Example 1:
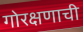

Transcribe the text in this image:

गोरक्षणाची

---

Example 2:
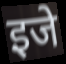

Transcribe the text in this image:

इजे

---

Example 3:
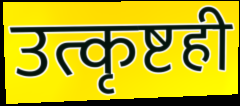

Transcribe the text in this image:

उत्कृष्टही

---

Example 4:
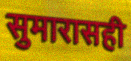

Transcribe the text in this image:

सुमारासही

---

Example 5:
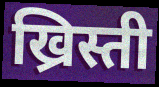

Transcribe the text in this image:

ख्रिस्ती